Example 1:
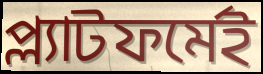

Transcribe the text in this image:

প্ল্যাটফর্মেই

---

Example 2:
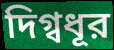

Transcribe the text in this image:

দিগ্বধূর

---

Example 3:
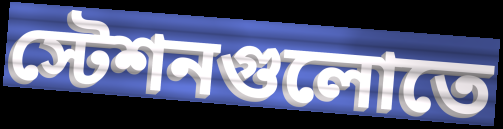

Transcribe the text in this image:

স্টেশনগুলোতে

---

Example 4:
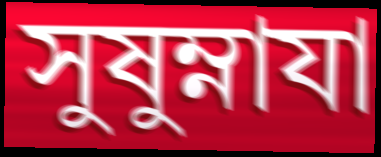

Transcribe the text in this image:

সুষুম্নাযা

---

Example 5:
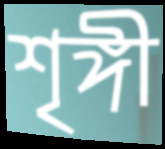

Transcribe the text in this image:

শৃঙ্গী